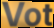
Vot